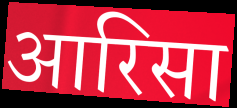
आरिसा